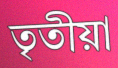
তৃতীয়া